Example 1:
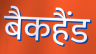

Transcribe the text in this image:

बैकहैंड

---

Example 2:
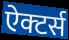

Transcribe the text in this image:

ऐक्‍टर्स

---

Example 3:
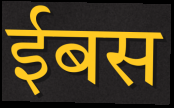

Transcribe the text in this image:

ईबस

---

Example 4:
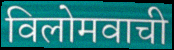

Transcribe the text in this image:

विलोमवाची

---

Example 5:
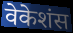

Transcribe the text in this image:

वेकेशंस